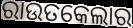
ରାଉତକେଲାର